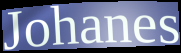
Johanes